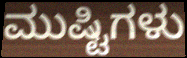
ಮುಷ್ಟಿಗಳು